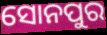
ସୋନପୁର